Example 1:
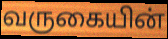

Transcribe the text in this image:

வருகையின்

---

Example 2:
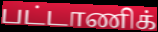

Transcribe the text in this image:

பட்டாணிக்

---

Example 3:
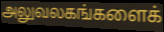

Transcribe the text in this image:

அலுவலகங்களைக்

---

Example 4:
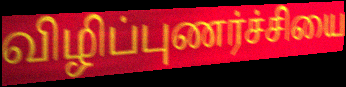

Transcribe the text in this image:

விழிப்புணர்ச்சியை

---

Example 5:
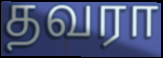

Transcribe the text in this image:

தவரா